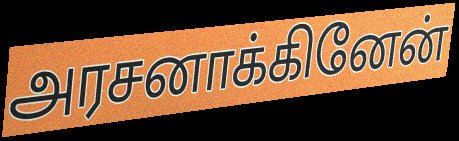
அரசனாக்கினேன்